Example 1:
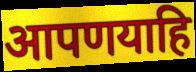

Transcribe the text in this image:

आपणयाहि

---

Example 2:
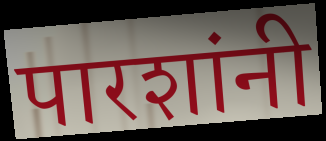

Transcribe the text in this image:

पारशांनी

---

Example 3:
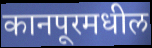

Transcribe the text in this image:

कानपूरमधील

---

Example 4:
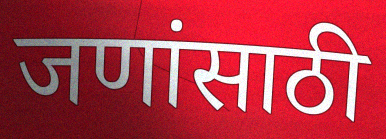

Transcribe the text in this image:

जणांसाठी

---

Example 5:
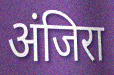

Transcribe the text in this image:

अंजिरा